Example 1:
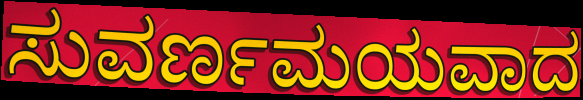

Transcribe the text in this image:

ಸುವರ್ಣಮಯವಾದ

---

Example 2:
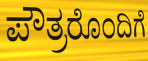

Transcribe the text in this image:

ಪೌತ್ರರೊಂದಿಗೆ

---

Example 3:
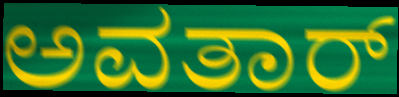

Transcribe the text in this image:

ಅವತಾರ್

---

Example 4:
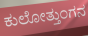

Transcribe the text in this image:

ಕುಲೋತ್ತುಂಗನ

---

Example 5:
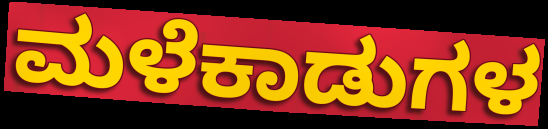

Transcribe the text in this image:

ಮಳೆಕಾಡುಗಳ